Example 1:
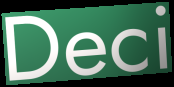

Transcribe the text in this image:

Deci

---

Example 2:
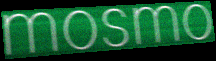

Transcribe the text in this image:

mosmo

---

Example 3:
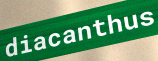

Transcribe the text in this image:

diacanthus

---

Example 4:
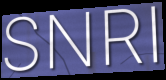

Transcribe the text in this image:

SNRI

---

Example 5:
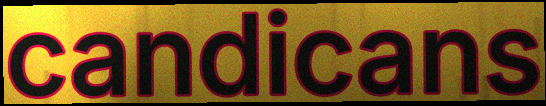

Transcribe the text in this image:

candicans